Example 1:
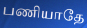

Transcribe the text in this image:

பணியாதே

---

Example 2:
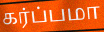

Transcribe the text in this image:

கர்ப்பமா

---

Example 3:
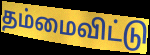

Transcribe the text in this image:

தம்மைவிட்டு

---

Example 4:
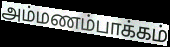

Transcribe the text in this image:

அம்மணம்பாக்கம்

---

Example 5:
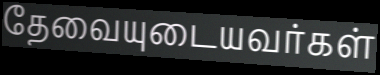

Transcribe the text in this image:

தேவையுடையவர்கள்